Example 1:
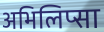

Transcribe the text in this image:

अभिलिप्सा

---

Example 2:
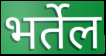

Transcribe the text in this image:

भर्तेल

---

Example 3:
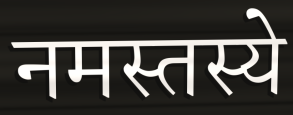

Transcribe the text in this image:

नमस्तस्ये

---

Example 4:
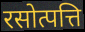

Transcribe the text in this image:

रसोत्पत्ति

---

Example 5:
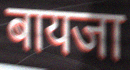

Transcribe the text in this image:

बायजा